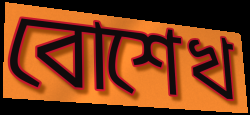
বোশেখ